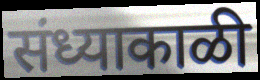
संध्याकाळी